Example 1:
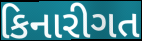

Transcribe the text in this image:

કિનારીગત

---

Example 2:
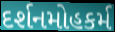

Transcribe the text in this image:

દર્શનમોહકર્મ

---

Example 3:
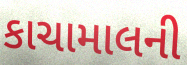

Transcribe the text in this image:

કાચામાલની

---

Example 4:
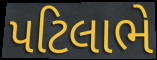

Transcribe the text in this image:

પટિલાભે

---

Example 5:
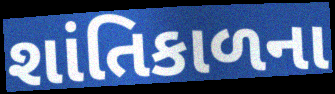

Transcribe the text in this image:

શાંતિકાળના